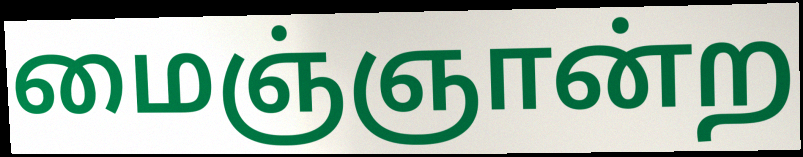
மைஞ்ஞான்ற